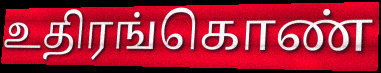
உதிரங்கொண்